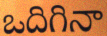
ఒదిగినా